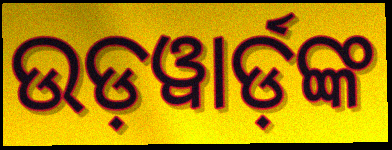
ଉଡ଼ୱାର୍ଡ଼ଙ୍କ